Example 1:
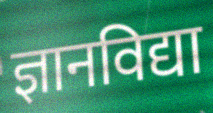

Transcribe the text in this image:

ज्ञानविद्या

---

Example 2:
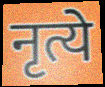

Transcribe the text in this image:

नृत्ये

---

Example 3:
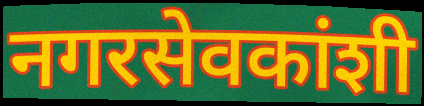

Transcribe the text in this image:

नगरसेवकांशी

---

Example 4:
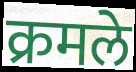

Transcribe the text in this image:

क्रमले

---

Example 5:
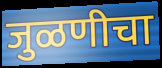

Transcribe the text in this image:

जुळणीचा